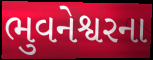
ભુવનેશ્વરના